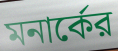
মনার্কের